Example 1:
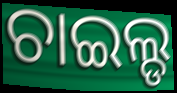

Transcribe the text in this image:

ଚାଇଲ୍ଡ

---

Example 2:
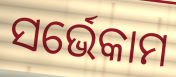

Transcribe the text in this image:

ସର୍ଭେକାମ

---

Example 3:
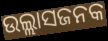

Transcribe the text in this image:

ଉଲ୍ଲାସଜନକ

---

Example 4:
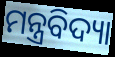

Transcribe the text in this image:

ମନ୍ତ୍ରବିଦ୍ୟା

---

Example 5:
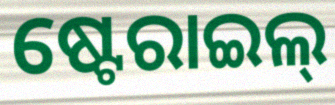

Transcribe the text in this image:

ଷ୍ଟେରାଇଲ୍